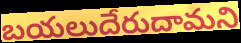
బయలుదేరుదామని